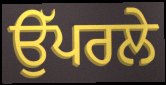
ਉੱਪਰਲੇ